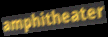
amphitheater